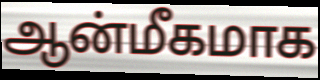
ஆன்மீகமாக